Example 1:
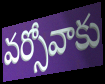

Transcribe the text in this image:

వర్సోవాకు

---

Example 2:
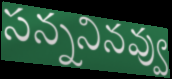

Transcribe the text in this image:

సన్ననినవ్వు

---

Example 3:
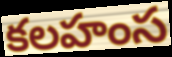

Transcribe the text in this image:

కలహంస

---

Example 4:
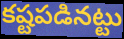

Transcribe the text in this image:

కష్టపడినట్టు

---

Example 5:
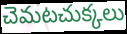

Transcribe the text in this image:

చెమటచుక్కలు